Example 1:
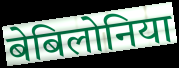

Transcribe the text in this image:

बेबिलोनिया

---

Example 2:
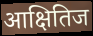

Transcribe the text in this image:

आक्षितिज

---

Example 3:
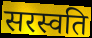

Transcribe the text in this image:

सरस्वति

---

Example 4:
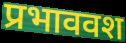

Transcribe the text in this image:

प्रभाववश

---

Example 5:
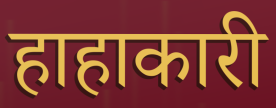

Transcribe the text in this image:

हाहाकारी